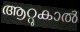
ആറ്റുകാൽ